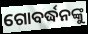
ଗୋବର୍ଦ୍ଧନଙ୍କୁ